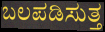
ಬಲಪಡಿಸುತ್ತ